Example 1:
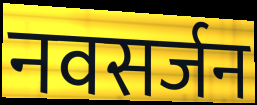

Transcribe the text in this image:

नवसर्जन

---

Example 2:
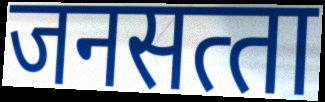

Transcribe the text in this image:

जनसत्‍ता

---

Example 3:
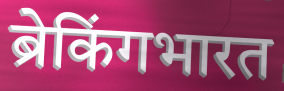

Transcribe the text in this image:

ब्रेकिंगभारत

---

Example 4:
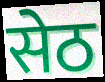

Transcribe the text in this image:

सेठ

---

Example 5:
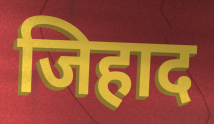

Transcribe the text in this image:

जिहाद